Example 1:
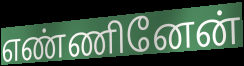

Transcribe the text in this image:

எண்ணினேன்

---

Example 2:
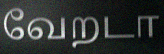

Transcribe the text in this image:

வேறடா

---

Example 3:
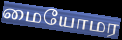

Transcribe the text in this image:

மையோமர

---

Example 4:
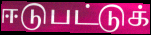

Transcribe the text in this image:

ஈடுபட்டுக்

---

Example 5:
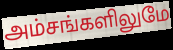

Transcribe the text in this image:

அம்சங்களிலுமே